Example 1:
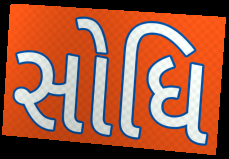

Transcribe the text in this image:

સોધિ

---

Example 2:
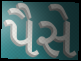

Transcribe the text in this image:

પૈસે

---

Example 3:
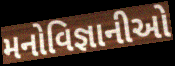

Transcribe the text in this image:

મનોવિજ્ઞાનીઓ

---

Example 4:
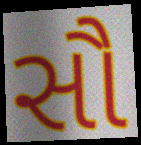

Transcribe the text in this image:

સૌ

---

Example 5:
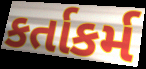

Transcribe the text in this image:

કર્તાકર્મ